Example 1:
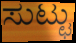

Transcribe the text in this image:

ಸುಟ್ಟು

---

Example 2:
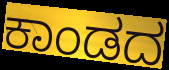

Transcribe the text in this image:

ಕಾಂಡದ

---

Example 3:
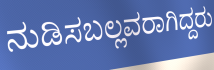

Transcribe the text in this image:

ನುಡಿಸಬಲ್ಲವರಾಗಿದ್ದರು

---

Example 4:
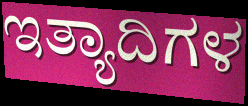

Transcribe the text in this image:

ಇತ್ಯಾದಿಗಳ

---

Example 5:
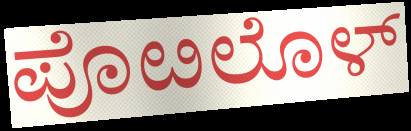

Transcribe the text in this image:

ಪೊೞಲೊಳ್